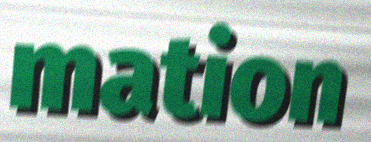
mation